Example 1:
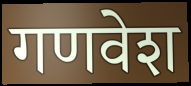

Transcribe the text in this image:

गणवेश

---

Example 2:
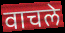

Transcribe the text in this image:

वाचले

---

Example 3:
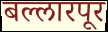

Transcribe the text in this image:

बल्लारपूर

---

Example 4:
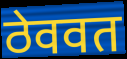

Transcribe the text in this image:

ठेववत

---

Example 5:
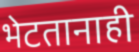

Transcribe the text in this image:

भेटतानाही